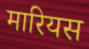
मारियस